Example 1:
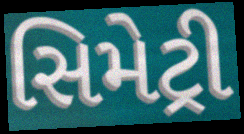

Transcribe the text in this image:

સિમેટ્રી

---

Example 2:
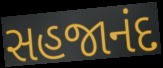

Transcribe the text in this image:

સહજાનંદ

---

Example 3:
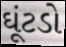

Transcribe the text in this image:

ઘૂંટડો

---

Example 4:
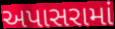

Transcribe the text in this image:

અપાસરામાં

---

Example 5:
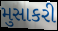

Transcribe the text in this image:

મુસાકરી